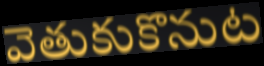
వెతుకుకొనుట